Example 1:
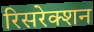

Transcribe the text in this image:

रिसरेक्शन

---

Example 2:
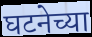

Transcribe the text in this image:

घटनेच्या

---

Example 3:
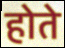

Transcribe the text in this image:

होते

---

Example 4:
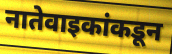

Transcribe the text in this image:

नातेवाइकांकडून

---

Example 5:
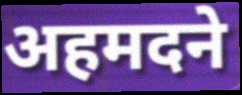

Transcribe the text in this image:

अहमदने